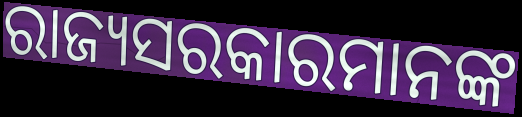
ରାଜ୍ୟସରକାରମାନଙ୍କ